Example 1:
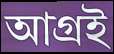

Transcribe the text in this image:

আগ্রই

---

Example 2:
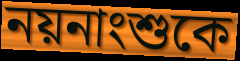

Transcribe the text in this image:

নয়নাংশুকে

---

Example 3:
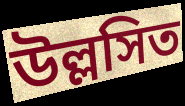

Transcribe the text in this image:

উল্লসিত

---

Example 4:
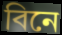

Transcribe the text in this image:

বিনে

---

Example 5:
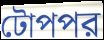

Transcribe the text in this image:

টোপপর